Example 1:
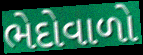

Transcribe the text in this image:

ભેદોવાળો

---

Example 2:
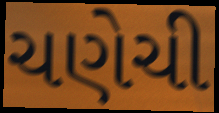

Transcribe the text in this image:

ચણેચી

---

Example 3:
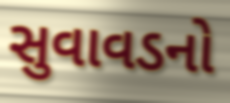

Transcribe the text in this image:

સુવાવડનો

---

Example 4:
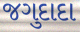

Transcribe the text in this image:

જગુદાદા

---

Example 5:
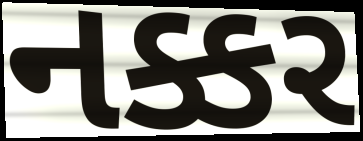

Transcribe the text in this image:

નક્કર